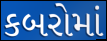
કબરોમાં